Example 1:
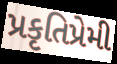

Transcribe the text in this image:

પ્રકૃતિપ્રેમી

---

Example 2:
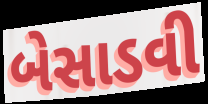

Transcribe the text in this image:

બેસાડવી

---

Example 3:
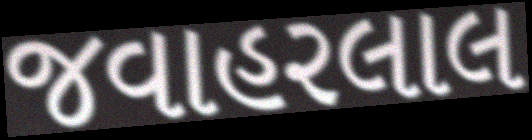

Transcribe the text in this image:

જવાહરલાલ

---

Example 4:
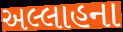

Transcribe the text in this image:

અલ્લાહના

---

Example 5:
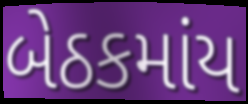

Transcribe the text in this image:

બેઠકમાંય